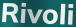
Rivoli